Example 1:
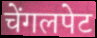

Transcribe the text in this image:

चेंगलपेट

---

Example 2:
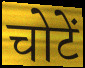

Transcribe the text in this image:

चोटें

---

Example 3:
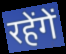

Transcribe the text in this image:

रहेंगें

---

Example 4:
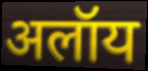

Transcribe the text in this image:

अलॉय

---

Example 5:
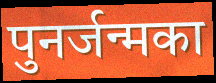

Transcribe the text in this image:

पुनर्जन्मका